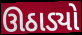
ઊઠાડ્યો